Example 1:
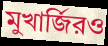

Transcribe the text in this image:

মুখার্জিরও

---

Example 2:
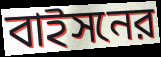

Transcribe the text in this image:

বাইসনের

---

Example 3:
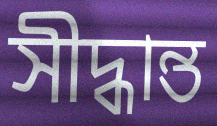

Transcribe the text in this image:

সীদ্ধান্ত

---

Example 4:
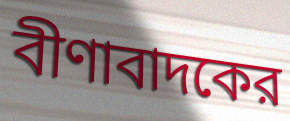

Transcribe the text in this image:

বীণাবাদকের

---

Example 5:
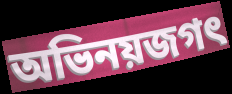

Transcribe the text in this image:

অভিনয়জগৎ